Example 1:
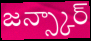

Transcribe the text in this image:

జన్స్కార్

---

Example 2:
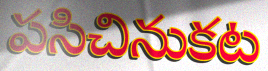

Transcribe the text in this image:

పసిచినుకట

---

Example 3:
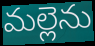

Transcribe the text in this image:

మల్లెను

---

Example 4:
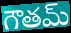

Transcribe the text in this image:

గౌతమ్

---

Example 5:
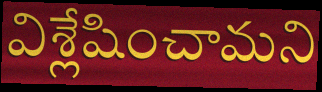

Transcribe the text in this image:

విశ్లేషించామని